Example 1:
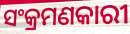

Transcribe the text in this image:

ସଂକ୍ରମଣକାରୀ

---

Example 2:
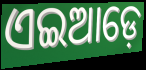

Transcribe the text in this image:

ଏଇଆଡ଼େ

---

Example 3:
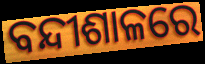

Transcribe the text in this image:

ବନ୍ଦୀଶାଳରେ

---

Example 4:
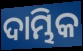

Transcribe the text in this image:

ଦାମ୍ଭିକ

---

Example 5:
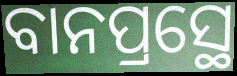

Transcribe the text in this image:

ବାନପ୍ରସ୍ଥେ